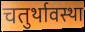
चतुर्थावस्था